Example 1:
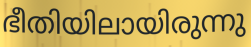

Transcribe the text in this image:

ഭീതിയിലായിരുന്നു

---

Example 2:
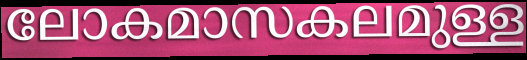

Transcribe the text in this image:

ലോകമാസകലമുള്ള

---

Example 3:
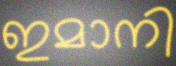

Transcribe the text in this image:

ഇമാനി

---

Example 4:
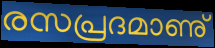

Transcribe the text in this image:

രസപ്രദമാണു്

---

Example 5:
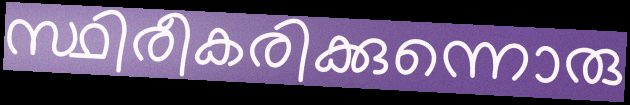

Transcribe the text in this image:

സ്ഥിരീകരിക്കുന്നൊരു